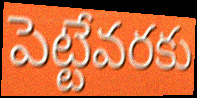
పెట్టేవరకు